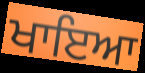
ਖਾਇਆ